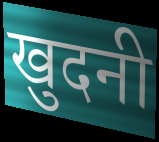
खुदनी